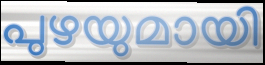
പുഴയുമായി